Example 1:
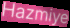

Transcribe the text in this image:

Hazmiye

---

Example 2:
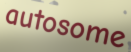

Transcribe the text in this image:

autosome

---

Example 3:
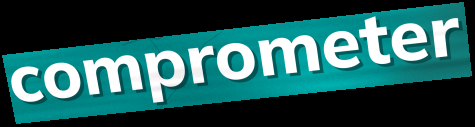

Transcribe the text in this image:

comprometer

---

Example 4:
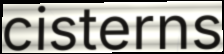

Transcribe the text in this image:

cisterns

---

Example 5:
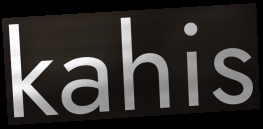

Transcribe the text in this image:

kahis